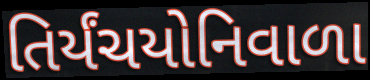
તિર્યંચયોનિવાળા